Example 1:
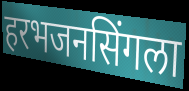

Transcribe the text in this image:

हरभजनसिंगला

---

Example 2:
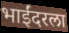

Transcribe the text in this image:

भाईंदरला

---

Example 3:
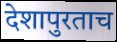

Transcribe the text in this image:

देशापुरताच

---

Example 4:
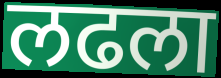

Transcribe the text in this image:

लढला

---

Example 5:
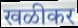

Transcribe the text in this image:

खळीकर